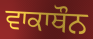
ਵਾਕਾਥੌਨ